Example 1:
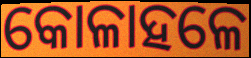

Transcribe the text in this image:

କୋଳାହଳେ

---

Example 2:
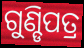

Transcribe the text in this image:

ଗୁଣ୍ଡିପତ୍ର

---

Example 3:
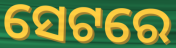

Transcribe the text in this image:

ସେଟରେ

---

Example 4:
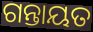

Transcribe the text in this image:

ଗନ୍ତାୟତ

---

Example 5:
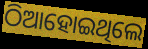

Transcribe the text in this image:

ଠିଆହୋଇଥିଲେ